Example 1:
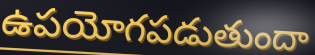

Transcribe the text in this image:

ఉపయోగపడుతుందా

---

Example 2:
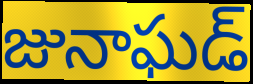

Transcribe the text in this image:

జునాఘడ్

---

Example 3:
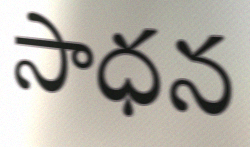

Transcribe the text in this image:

సాధన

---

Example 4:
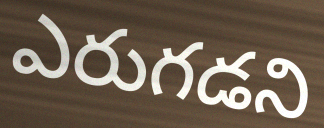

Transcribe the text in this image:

ఎరుగడని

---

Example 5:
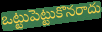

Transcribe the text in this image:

ఒట్టుపెట్టుకొనరాదు